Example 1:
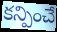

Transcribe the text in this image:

కన్పించే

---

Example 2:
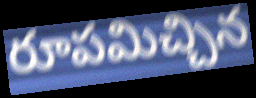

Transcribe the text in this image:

రూపమిచ్చిన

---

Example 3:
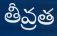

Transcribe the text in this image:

తీవ్రత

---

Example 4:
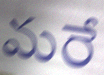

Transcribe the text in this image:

మరే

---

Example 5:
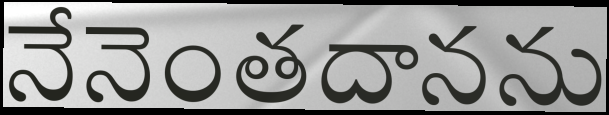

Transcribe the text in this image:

నేనెంతదానను